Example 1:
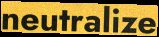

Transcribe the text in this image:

neutralize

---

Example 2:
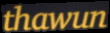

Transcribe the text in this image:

thawun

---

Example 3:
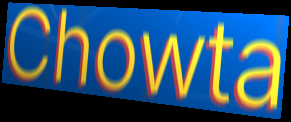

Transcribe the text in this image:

Chowta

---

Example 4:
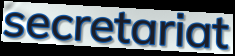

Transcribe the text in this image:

secretariat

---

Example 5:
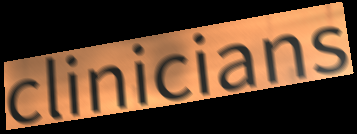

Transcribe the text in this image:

clinicians